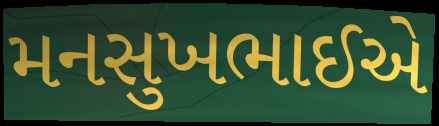
મનસુખભાઈએ